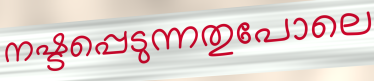
നഷ്ടപ്പെടുന്നതുപോലെ